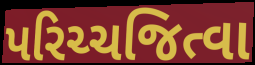
પરિચ્ચજિત્વા